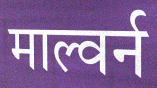
माल्वर्न